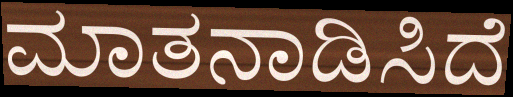
ಮಾತನಾಡಿಸಿದೆ